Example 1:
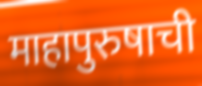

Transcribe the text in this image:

माहापुरुषाची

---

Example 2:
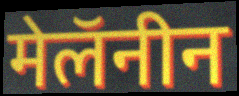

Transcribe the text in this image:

मेलॅनीन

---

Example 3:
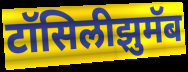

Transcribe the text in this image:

टॉसिलीझुमॅब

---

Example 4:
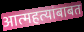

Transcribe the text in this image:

आत्महत्यांबाबत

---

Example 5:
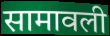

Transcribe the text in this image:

सामावली